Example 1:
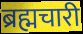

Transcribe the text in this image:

ब्रह्मचारी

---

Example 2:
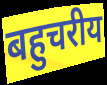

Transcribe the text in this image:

बहुचरीय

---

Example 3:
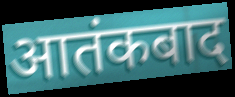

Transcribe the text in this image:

आतंकबाद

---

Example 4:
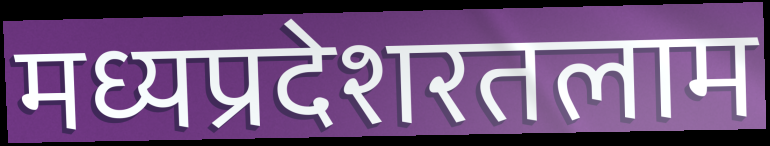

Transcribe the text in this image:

मध्यप्रदेशरतलाम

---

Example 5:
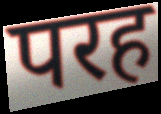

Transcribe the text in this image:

परह